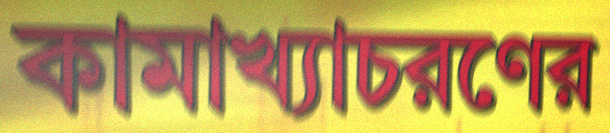
কামাখ্যাচরণের